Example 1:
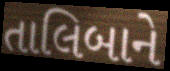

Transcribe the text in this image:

તાલિબાને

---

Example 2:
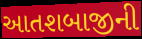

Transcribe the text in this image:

આતશબાજીની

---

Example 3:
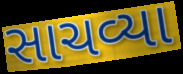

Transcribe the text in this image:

સાચવ્યા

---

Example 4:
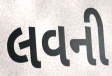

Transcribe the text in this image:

લવની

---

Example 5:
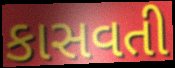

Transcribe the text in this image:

કાસવતી